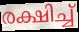
രക്ഷിച്ച്